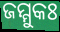
ଜମ୍ମୁକଃ